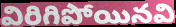
విరిగిపోయినవి